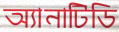
অ্যানাটিডি